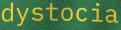
dystocia